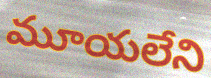
మూయలేని